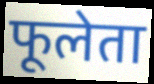
फूलेता